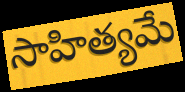
సాహిత్యమే